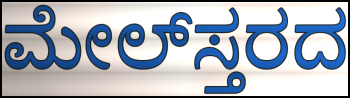
ಮೇಲ್‌ಸ್ತರದ